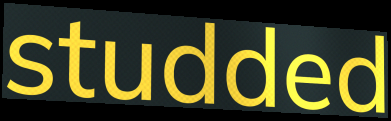
studded